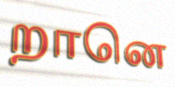
றானெ